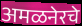
अमळनेरचे